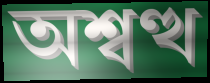
অশ্বত্থ